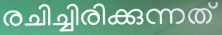
രചിച്ചിരിക്കുന്നത്